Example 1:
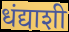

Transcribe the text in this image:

धंद्याशी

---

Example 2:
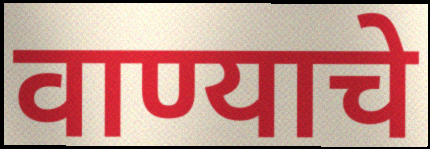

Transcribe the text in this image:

वाण्याचे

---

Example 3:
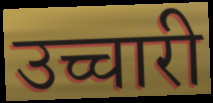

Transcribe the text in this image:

उच्चारी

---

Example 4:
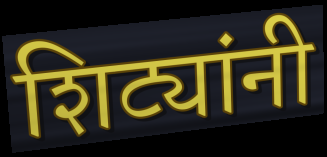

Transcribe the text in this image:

शिट्यांनी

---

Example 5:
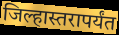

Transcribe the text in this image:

जिल्हास्तरापर्यंत